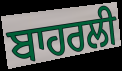
ਬਾਹਰਲੀ